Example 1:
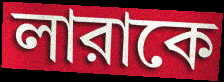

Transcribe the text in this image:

লারাকে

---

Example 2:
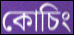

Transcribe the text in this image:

কোচিং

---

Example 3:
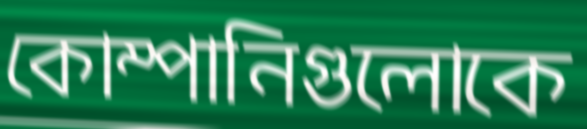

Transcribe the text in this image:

কোম্পানিগুলোকে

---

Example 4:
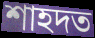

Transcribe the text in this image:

শাহদত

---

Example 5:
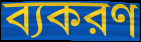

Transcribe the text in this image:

ব্যকরণ